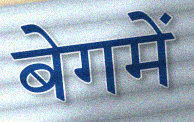
बेगमें